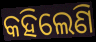
କହିଲେଣି